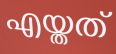
എയ്തത്